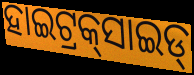
ହାଇଟ୍ରକ୍‌ସାଇଡ୍